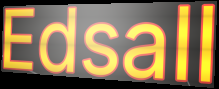
Edsall